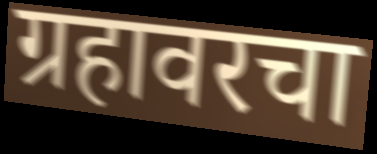
ग्रहावरचा